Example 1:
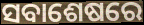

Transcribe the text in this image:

ସବାଶେଷରେ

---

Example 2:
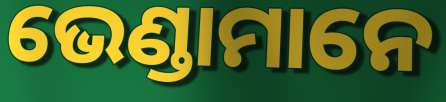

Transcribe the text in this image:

ଭେଣ୍ଡାମାନେ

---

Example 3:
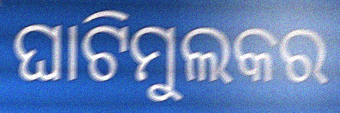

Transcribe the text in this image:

ଘାଟିମୁଲକର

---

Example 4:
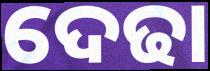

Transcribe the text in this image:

ଦେଢା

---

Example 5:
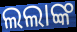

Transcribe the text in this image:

ଲଲାଙ୍କ